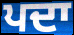
ਪਦਾ